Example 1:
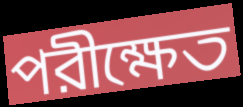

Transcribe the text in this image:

পরীক্ষেত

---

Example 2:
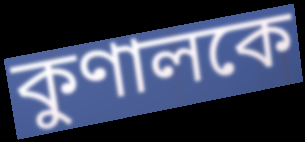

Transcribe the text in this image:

কুণালকে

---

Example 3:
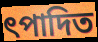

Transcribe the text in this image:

ৎপাদিত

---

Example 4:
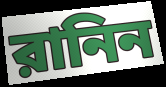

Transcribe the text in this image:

রানিন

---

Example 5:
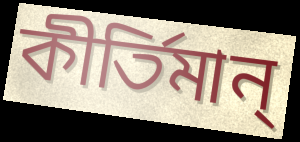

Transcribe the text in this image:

কীর্তিমান্